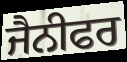
ਜੈਨੀਫਰ